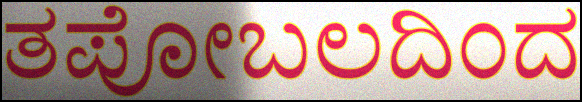
ತಪೋಬಲದಿಂದ